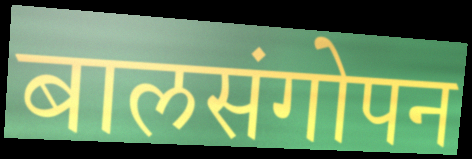
बालसंगोपन